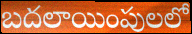
బదలాయింపులలో